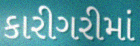
કારીગરીમાં